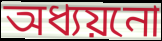
অধ্যয়নো